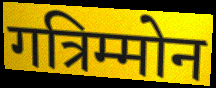
गत्रिम्मोन